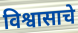
विश्वासाचे